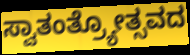
ಸ್ವಾತಂತ್ರ್ಯೋತ್ಸವದ